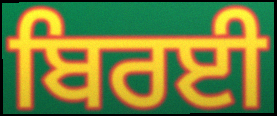
ਬਿਰਈ